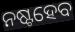
ନଷ୍ଟହେବ